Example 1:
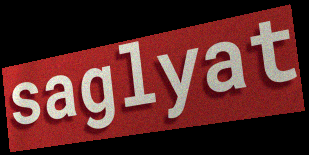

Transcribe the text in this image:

saglyat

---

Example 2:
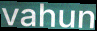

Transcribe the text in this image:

vahun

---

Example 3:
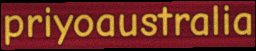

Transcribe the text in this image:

priyoaustralia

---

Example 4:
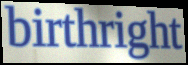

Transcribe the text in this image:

birthright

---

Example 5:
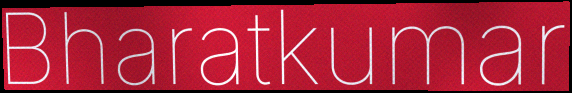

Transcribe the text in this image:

Bharatkumar